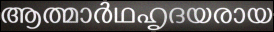
ആത്മാർഥഹൃദയരായ